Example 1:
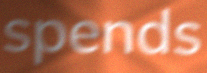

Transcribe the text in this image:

spends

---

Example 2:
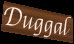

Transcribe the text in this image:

Duggal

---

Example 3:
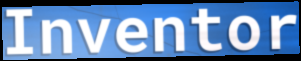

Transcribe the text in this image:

Inventor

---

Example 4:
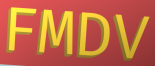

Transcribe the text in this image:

FMDV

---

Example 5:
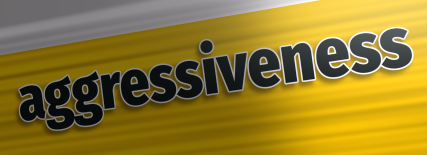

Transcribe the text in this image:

aggressiveness